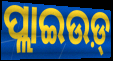
ପ୍ଲାଇଉଡ଼୍